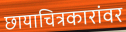
छायाचित्रकारांवर